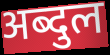
अब्दुल